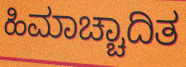
ಹಿಮಾಚ್ಚಾದಿತ